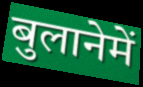
बुलानेमें